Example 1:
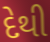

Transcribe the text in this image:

દેથી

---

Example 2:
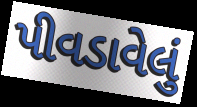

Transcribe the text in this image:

પીવડાવેલું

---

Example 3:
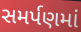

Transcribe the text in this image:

સમર્પણમાં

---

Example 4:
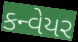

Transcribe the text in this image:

કન્વેયર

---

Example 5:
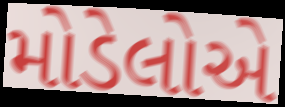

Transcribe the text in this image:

મોડેલોએ